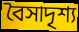
বৈসাদৃশ্য